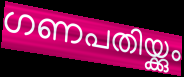
ഗണപതിയ്ക്കും